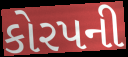
કોરપની